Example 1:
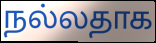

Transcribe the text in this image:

நல்லதாக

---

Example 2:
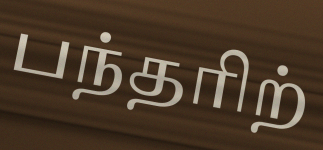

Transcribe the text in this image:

பந்தரிற்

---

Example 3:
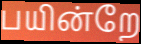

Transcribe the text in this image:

பயின்றே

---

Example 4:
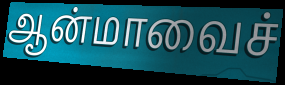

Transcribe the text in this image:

ஆன்மாவைச்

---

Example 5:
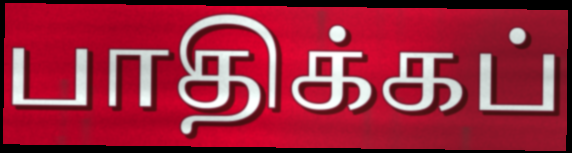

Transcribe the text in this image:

பாதிக்கப்